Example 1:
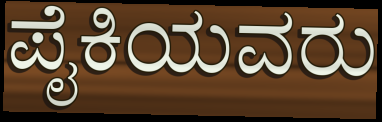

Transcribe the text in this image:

ಪೈಕಿಯವರು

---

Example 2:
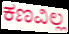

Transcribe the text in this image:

ಕಣವಿಲ್ಲ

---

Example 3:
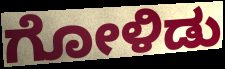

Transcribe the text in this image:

ಗೋಳಿಡು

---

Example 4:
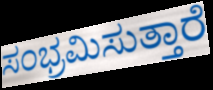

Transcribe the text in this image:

ಸಂಭ್ರಮಿಸುತ್ತಾರೆ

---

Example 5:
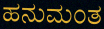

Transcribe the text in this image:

ಹನುಮಂತ